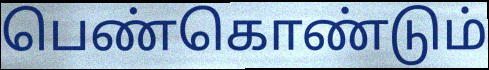
பெண்கொண்டும்